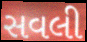
સવલી